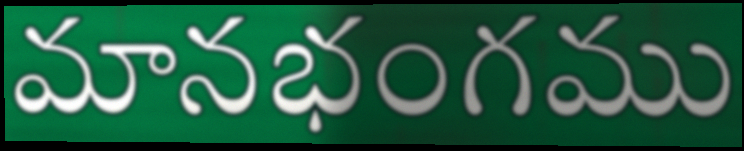
మానభంగము